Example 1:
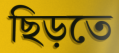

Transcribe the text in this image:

ছিড়তে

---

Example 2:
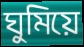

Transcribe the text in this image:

ঘুমিয়ে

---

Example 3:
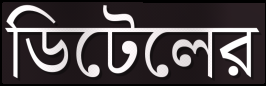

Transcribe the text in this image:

ডিটেলের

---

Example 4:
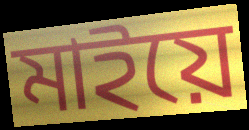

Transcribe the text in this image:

মাইয়ে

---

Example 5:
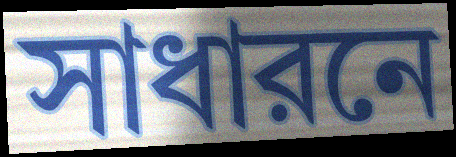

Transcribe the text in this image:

সাধারনে